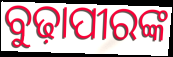
ବୁଢ଼ାପୀରଙ୍କ